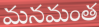
మనమంత